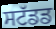
ਸਟੱਡਡ